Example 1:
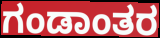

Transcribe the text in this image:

ಗಂಡಾಂತರ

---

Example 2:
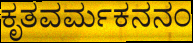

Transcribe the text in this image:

ಕೃತವರ್ಮಕನನಂ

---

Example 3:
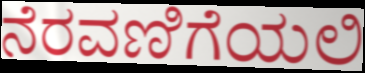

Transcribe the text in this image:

ನೆರವಣಿಗೆಯಲಿ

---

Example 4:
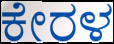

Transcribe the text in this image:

ಕೇರಳ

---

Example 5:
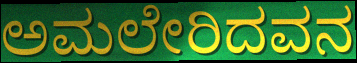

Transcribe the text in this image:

ಅಮಲೇರಿದವನ